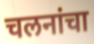
चलनांचा